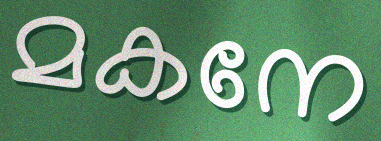
മകനേ